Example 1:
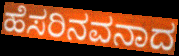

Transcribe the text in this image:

ಹೆಸರಿನವನಾದ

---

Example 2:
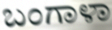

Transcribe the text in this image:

ಬಂಗಾಳಾ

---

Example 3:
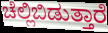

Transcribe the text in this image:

ಚೆಲ್ಲಿಬಿಡುತ್ತಾರೆ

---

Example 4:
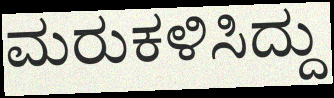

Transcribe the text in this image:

ಮರುಕಳಿಸಿದ್ದು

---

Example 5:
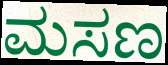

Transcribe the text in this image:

ಮಸಣ